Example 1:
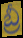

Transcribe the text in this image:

బ్రీ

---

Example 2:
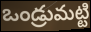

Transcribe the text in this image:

ఒండ్రుమట్టి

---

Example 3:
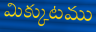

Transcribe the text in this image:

మిక్కుటము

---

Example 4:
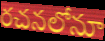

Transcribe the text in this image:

రచనలోనూ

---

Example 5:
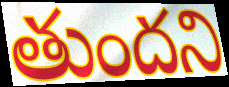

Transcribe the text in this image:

తుందని